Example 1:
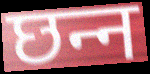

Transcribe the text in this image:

छन्न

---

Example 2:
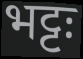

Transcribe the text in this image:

भट्टः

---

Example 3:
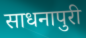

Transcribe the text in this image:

साधनापुरी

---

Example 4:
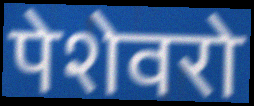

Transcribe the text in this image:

पेशेवरो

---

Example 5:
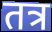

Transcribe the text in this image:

तत्र